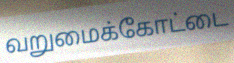
வறுமைக்கோட்டை